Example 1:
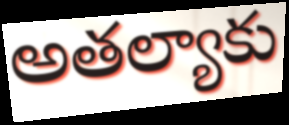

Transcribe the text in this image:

అతల్యాకు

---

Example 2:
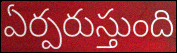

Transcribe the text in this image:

ఏర్పరుస్తుంది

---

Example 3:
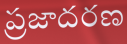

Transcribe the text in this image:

ప్రజాదరణ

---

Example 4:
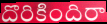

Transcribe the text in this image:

దొరికిందిరా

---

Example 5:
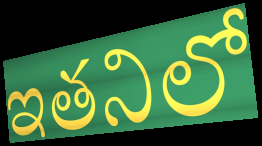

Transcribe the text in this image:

ఇతనిలో